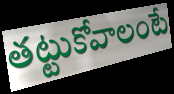
తట్టుకోవాలంటే